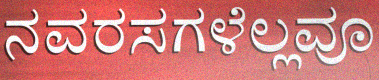
ನವರಸಗಳೆಲ್ಲವೂ